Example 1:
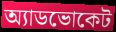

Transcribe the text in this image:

অ্যাডভোকেট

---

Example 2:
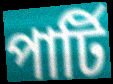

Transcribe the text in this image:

পার্টি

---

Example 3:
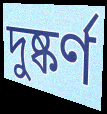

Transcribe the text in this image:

দুষ্কর্ণ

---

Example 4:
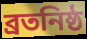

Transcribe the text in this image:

ব্রতনিষ্ঠ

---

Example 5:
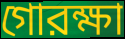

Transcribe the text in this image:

গোরক্ষা